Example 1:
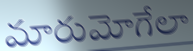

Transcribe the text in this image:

మారుమోగేలా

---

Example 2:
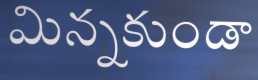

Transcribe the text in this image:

మిన్నకుండా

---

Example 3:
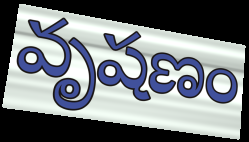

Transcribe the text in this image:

వృషణం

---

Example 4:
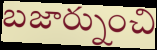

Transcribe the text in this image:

బజార్నుంచి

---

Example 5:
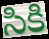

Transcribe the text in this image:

సికి